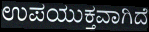
ಉಪಯುಕ್ತವಾಗಿದೆ